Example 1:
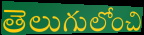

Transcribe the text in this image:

తెలుగులోంచి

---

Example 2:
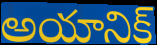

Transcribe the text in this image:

అయానిక్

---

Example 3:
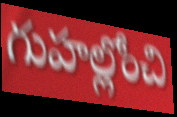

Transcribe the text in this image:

గుహల్లోంచి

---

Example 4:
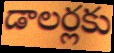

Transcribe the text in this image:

డాలర్లకు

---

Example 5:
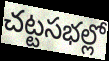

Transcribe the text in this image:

చట్టసభల్లో